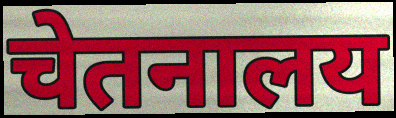
चेतनालय